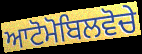
ਆਟੋਮੋਬਿਲਵੋਚੇ